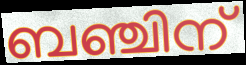
ബഞ്ചിന്